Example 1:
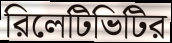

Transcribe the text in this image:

রিলেটিভিটির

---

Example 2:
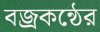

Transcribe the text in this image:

বজ্রকন্ঠের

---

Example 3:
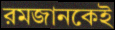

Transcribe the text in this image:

রমজানকেই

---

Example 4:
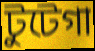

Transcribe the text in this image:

টুটেগা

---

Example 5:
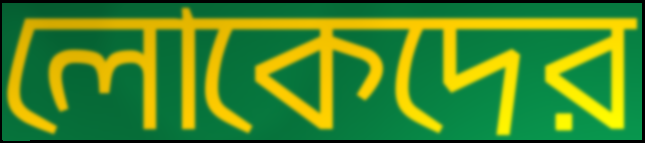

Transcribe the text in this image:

লোকেদের